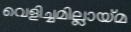
വെളിച്ചമില്ലായ്മ